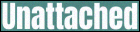
Unattached